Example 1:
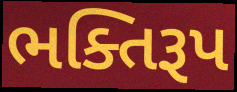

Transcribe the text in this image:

ભક્તિરૂપ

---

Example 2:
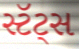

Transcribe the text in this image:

સ્ટૅટ્સ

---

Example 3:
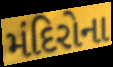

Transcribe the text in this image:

મંદિરોના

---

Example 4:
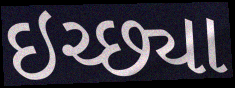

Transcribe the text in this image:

ઇચ્છ્યા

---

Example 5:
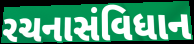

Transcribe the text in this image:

રચનાસંવિધાન